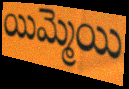
యిమ్మెయి